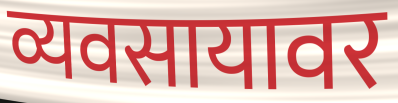
व्यवसायावर